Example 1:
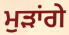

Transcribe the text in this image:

ਮੁੜਾਂਗੇ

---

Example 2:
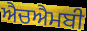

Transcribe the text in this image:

ਐਚਐਮਬੀ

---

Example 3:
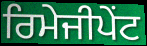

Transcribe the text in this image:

ਰਿਮੇਜੀਪੇਂਟ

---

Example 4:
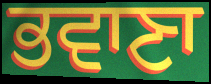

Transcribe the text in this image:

ਭਵਾਣਾ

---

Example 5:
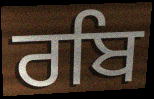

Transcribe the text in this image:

ਰਬਿ